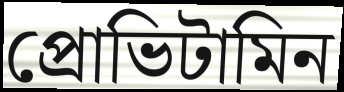
প্রোভিটামিন